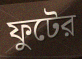
ফুটের